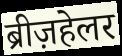
ब्रीज़हेलर